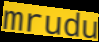
mrudu